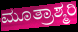
ಮೂತ್ರಾಶ್ಮರಿ